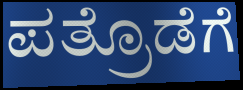
ಪತ್ರೊಡೆಗೆ